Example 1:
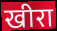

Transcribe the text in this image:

खीरा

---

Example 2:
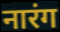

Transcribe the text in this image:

नारंग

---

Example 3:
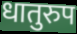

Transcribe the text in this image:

धातुरुप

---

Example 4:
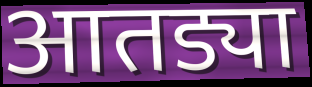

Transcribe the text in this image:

आतड्या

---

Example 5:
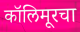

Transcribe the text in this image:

कॉलिमूरचा